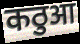
कठुआ